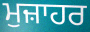
ਮੁਜ਼ਾਹਰ